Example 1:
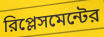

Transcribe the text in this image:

রিপ্লেসমেন্টের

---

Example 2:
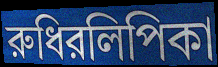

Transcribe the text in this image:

রুধিরলিপিকা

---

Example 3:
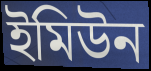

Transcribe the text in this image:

ইমিউন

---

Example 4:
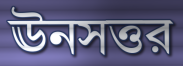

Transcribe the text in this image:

ঊনসত্তর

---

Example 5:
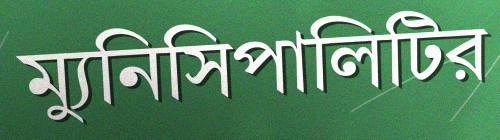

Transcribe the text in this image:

ম্যুনিসিপালিটির